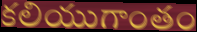
కలియుగాంతం